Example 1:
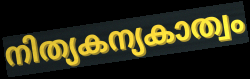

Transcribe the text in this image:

നിത്യകന്യകാത്വം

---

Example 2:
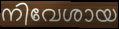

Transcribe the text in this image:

നിവേശായ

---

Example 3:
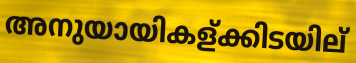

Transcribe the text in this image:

അനുയായികള്ക്കിടയില്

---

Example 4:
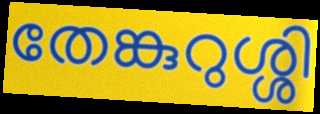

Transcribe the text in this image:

തേങ്കുറുശ്ശി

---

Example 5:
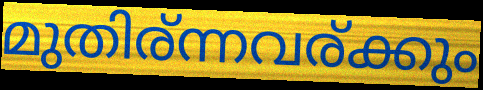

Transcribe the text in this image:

മുതിര്ന്നവര്ക്കും